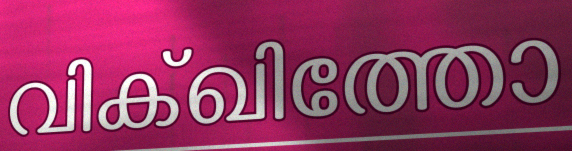
വിക്ഖിത്തോ